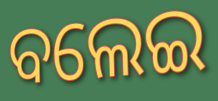
ବଲେଇ